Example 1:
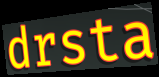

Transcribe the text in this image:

drsta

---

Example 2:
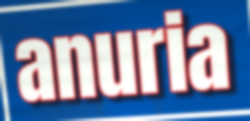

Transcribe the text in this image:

anuria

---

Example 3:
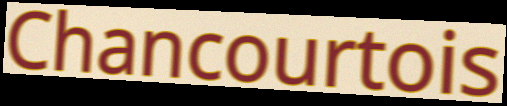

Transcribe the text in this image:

Chancourtois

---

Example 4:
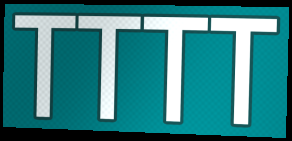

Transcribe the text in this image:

TTTT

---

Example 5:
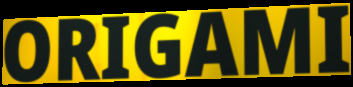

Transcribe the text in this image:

ORIGAMI